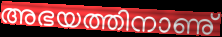
അഭയത്തിനാണു്